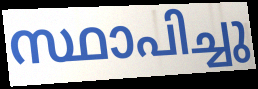
സ്ഥാപിച്ചു